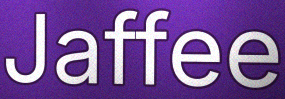
Jaffee